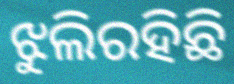
ଝୁଲିରହିଛି